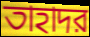
তাহাদর